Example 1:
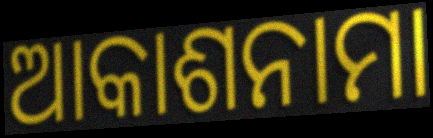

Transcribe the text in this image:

ଆକାଶନାମା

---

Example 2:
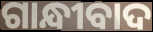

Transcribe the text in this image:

ଗାନ୍ଧୀବାଦ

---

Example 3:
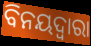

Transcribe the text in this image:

ବିନୟଦ୍ବାରା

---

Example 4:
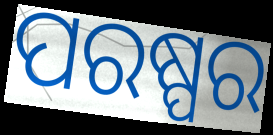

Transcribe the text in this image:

ପରଷ୍ପର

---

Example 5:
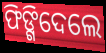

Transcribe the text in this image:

ଫିଙ୍ଗିଦେଲେ